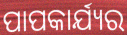
ପାପକାର୍ଯ୍ୟର